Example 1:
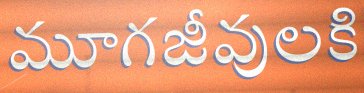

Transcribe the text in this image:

మూగజీవులకి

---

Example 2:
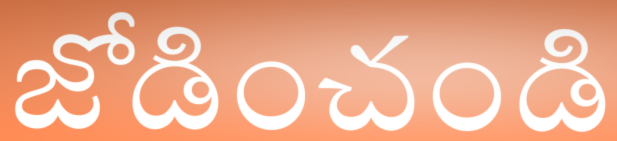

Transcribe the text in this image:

జోడించండి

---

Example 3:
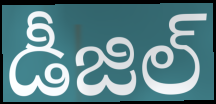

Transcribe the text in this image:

డీజిల్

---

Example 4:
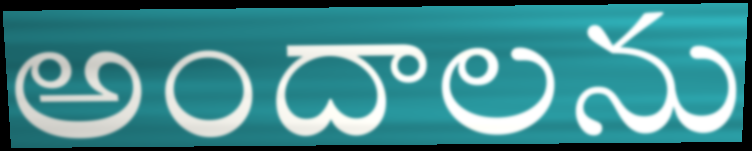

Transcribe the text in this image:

అందాలను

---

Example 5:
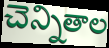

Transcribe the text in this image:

చెన్నితాల